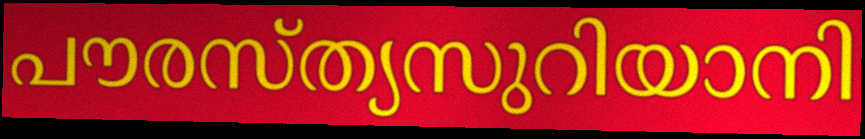
പൗരസ്ത്യസുറിയാനി